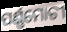
ପର୍ଣ୍ଣମୋଚୀ